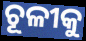
ଚୂଳୀକୁ